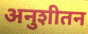
अनुशीतन